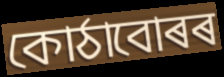
কোঠাবোৰৰ